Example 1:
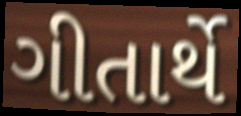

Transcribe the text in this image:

ગીતાર્થે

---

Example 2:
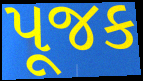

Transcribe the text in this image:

પૂજક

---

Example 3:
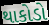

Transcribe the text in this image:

થાકોડો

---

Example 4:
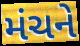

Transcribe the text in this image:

મંચને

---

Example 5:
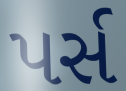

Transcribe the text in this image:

પર્સ